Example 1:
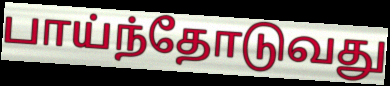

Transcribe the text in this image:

பாய்ந்தோடுவது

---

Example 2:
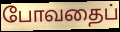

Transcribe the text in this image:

போவதைப்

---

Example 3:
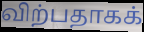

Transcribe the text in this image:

விற்பதாகக்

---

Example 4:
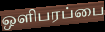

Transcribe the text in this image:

ஒளிபரப்பை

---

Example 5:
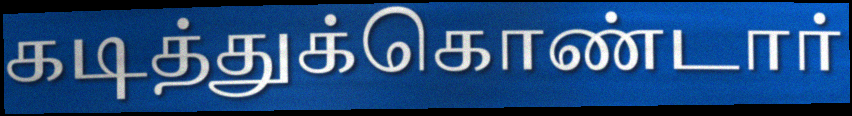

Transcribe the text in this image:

கடித்துக்கொண்டார்